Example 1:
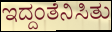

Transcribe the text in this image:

ಇದ್ದಂತೆನಿಸಿತು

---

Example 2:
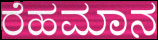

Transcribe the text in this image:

ರೆಹಮಾನ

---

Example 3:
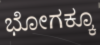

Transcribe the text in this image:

ಭೋಗಕ್ಕೂ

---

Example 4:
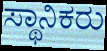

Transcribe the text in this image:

ಸ್ಥಾನಿಕರು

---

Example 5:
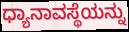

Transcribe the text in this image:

ಧ್ಯಾನಾವಸ್ಥೆಯನ್ನು